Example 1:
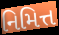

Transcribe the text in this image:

નિમિત્ત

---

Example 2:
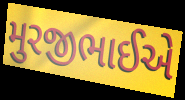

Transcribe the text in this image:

મુરજીભાઈએ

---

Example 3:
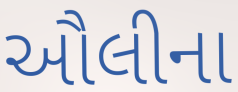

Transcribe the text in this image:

ઔલીના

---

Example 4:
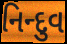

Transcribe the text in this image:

નિન્દુવ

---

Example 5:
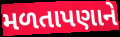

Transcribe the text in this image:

મળતાપણાને